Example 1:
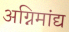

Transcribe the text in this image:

अग्निमांद्य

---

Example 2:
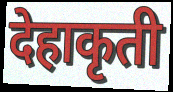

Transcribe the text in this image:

देहाकृती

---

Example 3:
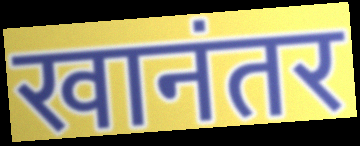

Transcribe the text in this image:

खानंतर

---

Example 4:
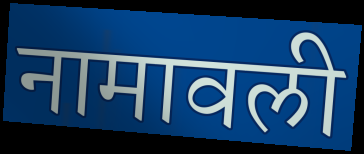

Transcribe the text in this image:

नामावली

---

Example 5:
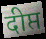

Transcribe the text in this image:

दीप्त